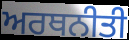
ਅਰਥਨੀਤੀ